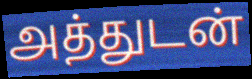
அத்துடன்